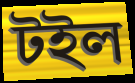
টইল